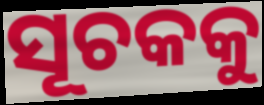
ସୂଚକକୁ